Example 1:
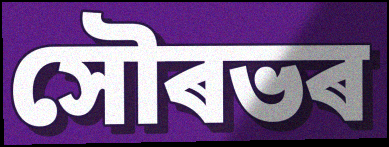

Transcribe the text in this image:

সৌৰভৰ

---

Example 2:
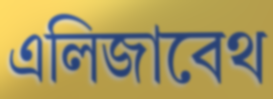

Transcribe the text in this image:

এলিজাবেথ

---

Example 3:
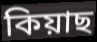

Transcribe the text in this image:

কিয়াছ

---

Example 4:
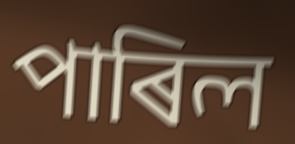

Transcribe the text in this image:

পাৰিল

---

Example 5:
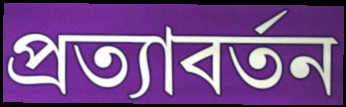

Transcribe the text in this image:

প্ৰত্যাবৰ্তন